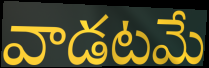
వాడటమే